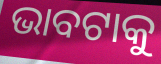
ଭାବଟାକୁ